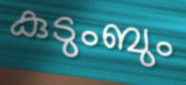
കുടുംബും